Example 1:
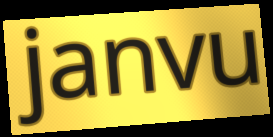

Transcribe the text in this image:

janvu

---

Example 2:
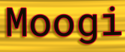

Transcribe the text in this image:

Moogi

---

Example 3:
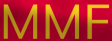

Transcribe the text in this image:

MMF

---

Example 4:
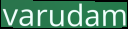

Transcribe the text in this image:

varudam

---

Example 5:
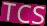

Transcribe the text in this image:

TCS